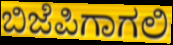
ಬಿಜೆಪಿಗಾಗಲಿ